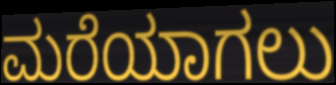
ಮರೆಯಾಗಲು